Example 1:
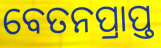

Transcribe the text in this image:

ବେତନପ୍ରାପ୍ତ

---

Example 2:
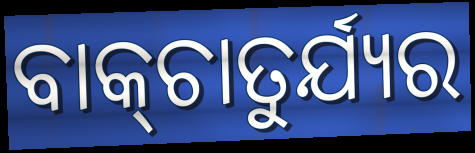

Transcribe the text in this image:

ବାକ୍‍ଚାତୁର୍ଯ୍ୟର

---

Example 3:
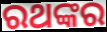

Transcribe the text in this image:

ରଥଙ୍କର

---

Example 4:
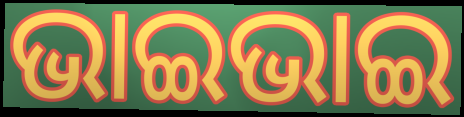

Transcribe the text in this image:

ଭାଇଭାଇ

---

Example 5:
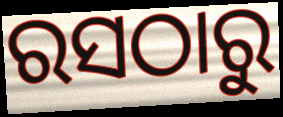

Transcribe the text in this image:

ରସଠାରୁ